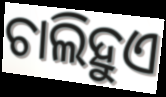
ଚାଲିହୁଏ